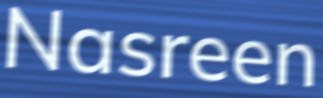
Nasreen